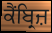
ਕੈਂਬ੍ਰਿਜ਼